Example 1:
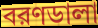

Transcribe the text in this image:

বরণডালা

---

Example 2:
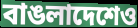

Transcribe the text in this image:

বাঙলাদেশেও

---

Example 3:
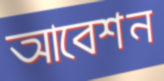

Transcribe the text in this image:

আবেশন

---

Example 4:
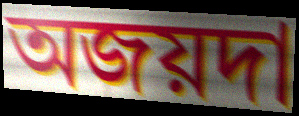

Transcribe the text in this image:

অজয়দা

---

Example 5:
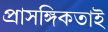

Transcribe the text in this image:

প্রাসঙ্গিকতাই